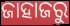
ଜାହାଜରୁ